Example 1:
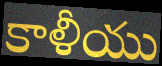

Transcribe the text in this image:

కాళీయు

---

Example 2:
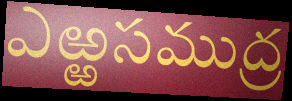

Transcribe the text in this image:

ఎఱ్ఱసముద్ర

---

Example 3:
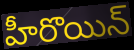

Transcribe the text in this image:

హీరొయిన్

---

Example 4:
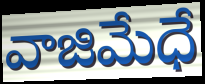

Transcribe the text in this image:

వాజిమేధే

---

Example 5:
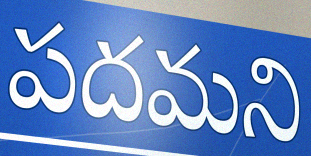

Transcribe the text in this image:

పదమని